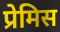
प्रेमिस